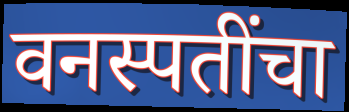
वनस्पतींचा